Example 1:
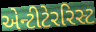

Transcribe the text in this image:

એન્ટીટેરરિસ્ટ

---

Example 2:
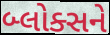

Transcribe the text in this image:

બ્લોક્સને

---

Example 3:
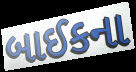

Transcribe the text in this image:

બાઈકના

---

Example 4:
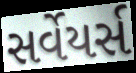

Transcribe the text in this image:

સર્વેયર્સ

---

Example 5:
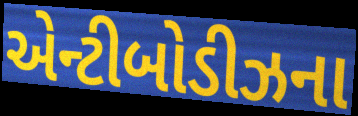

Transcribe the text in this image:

એન્ટીબોડીઝના